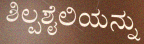
ಶಿಲ್ಪಶೈಲಿಯನ್ನು